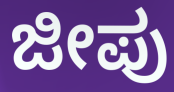
ಜೀಪು